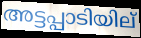
അട്ടപ്പാടിയില്